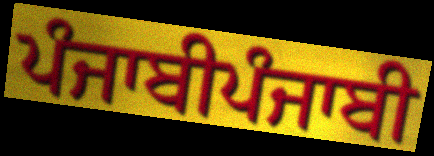
ਪੰਜਾਬੀਪੰਜਾਬੀ